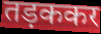
तड़ककर